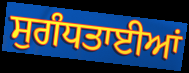
ਸੁਗੰਧਤਾਈਆਂ